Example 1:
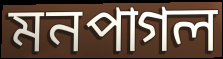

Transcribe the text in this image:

মনপাগল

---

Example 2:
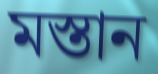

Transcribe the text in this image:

মস্তান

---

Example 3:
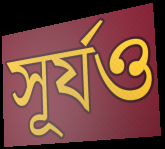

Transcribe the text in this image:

সূর্যও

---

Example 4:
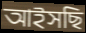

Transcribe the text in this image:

আইসছি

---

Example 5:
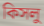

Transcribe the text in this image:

কিসলু